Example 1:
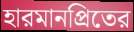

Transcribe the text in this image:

হারমানপ্রিতের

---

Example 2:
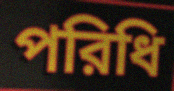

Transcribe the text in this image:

পরিধি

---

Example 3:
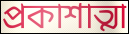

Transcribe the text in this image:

প্রকাশাত্মা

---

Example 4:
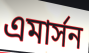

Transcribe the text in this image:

এমার্সন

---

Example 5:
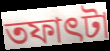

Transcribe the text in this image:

তফাৎটা